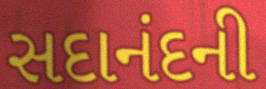
સદાનંદની